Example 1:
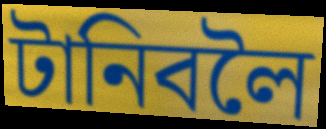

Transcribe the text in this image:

টানিবলৈ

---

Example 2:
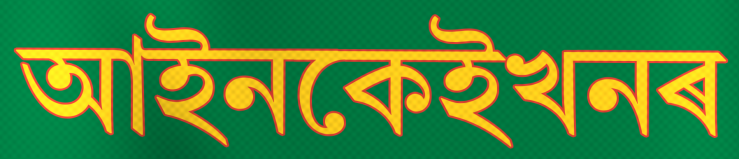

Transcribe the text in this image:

আইনকেইখনৰ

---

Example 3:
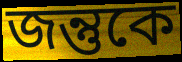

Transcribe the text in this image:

জন্তুকে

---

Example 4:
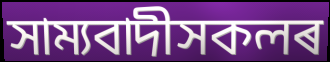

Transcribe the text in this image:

সাম্যবাদীসকলৰ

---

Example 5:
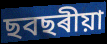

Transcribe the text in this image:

ছবছৰীয়া